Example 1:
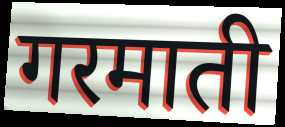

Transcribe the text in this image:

गरमाती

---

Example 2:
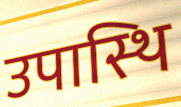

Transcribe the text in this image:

उपास्थि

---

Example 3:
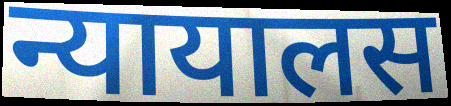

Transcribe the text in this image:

न्यायालस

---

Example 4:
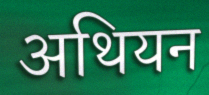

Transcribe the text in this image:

अथियन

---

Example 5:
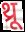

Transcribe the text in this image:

थ्रू